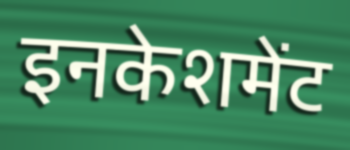
इनकेशमेंट